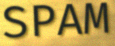
SPAM